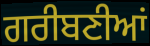
ਗਰੀਬਣੀਆਂ